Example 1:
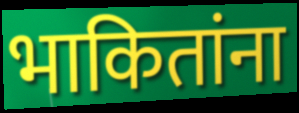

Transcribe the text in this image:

भाकितांना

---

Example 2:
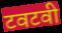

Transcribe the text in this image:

टवटवी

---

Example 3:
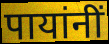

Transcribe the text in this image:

पायांनीं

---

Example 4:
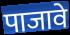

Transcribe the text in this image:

पाजावे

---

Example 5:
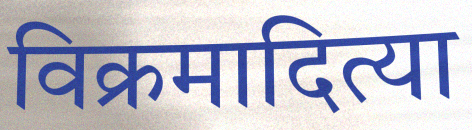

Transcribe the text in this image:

विक्रमादित्या